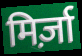
मिर्ज़ा